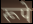
रूपे